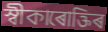
স্বীকাৰোক্তিৰ